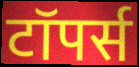
टॉपर्स